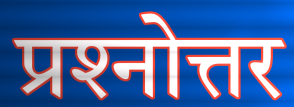
प्रश्‍नोत्तर